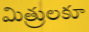
మిత్రులకూ